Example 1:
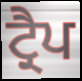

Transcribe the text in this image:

ਟ੍ਰੈਪ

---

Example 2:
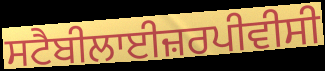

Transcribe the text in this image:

ਸਟੈਬੀਲਾਈਜ਼ਰਪੀਵੀਸੀ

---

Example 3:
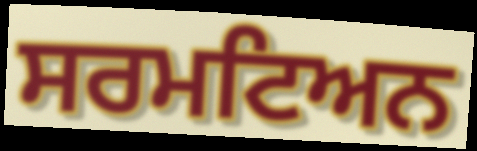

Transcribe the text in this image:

ਸਰਮਟਿਅਨ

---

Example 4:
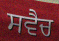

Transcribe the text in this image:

ਸਵੈਚ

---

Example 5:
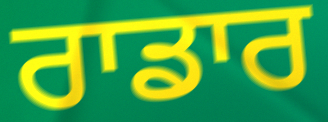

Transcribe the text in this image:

ਰਾਡਾਰ